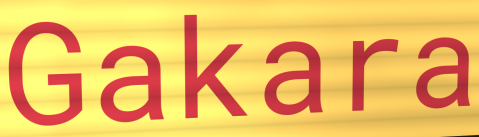
Gakara